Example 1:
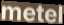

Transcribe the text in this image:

metel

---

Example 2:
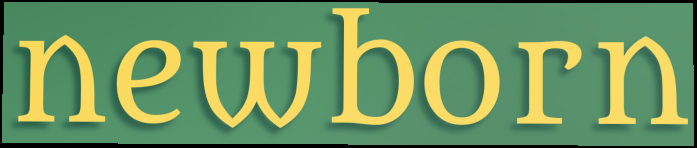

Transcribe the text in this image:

newborn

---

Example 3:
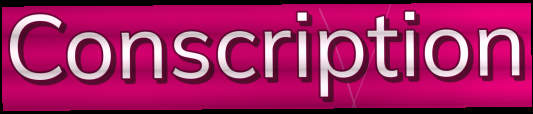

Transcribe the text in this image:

Conscription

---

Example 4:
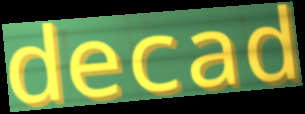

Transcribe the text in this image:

decad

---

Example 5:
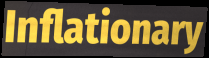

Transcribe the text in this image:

Inflationary